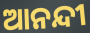
ଆନନ୍ଦୀ